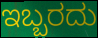
ಇಬ್ಬರದು